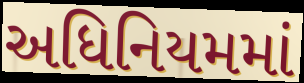
અધિનિયમમાં